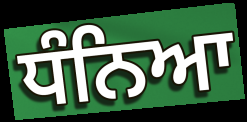
ਧੰਨਿਆ